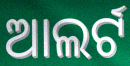
ଆଲର୍ଟ